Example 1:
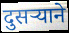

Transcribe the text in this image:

दुसऱ्याने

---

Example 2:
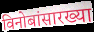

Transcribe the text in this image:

विनोबांसारख्या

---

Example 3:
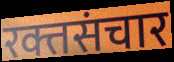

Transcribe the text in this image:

रक्तसंचार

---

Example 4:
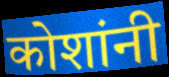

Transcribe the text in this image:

कोशांनी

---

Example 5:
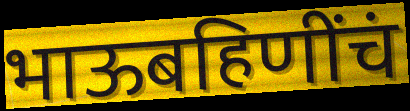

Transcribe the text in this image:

भाऊबहिणींचं